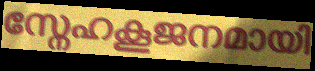
സ്നേഹകൂജനമായി